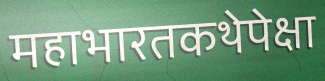
महाभारतकथेपेक्षा